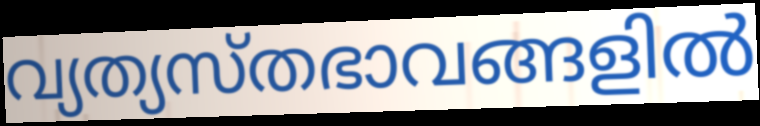
വ്യത്യസ്തഭാവങ്ങളിൽ